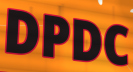
DPDC